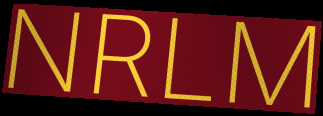
NRLM